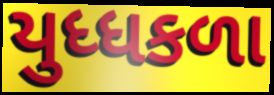
યુધ્ધકળા